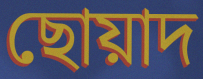
ছোয়াদ